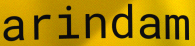
arindam